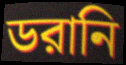
ডরানি